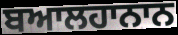
ਬਆਲਹਾਨਾਨ